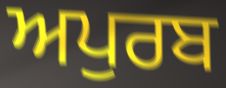
ਅਪੁਰਬ